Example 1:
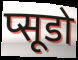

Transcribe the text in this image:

प्सूडो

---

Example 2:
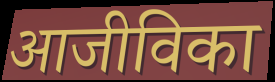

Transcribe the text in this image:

आजीविका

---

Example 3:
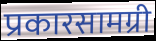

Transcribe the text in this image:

प्रकारसामग्री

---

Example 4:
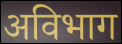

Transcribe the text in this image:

अविभाग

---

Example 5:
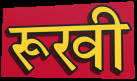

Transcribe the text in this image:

रूखी